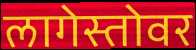
लागेस्तोवर